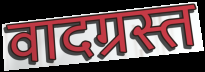
वादग्रस्त